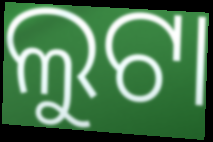
ଲୁଟା